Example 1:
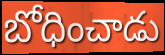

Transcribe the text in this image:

బోధించాడు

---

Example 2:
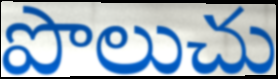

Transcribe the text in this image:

పొలుచు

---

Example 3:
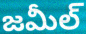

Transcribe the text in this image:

జమీల్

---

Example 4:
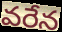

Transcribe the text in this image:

వరేన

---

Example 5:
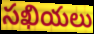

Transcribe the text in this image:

సఖియలు